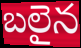
బలైన